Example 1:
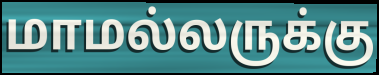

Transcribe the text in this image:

மாமல்லருக்கு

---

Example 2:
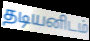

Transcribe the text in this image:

தடியனிடம்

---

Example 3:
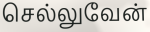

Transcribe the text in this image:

செல்லுவேன்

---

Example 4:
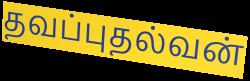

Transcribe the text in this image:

தவப்புதல்வன்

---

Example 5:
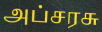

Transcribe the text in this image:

அப்சரசு